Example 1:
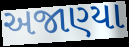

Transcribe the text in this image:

અજાણ્યા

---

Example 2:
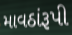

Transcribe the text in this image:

માવઠાંરૂપી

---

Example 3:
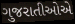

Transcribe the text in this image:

ગુજરાતીઓએ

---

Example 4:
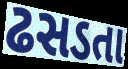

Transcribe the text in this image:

ઢસડતા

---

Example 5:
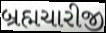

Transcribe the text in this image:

બ્રહ્મચારીજી